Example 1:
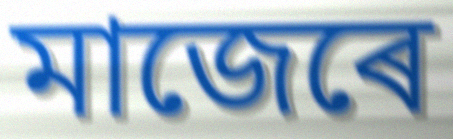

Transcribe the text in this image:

মাজেৰে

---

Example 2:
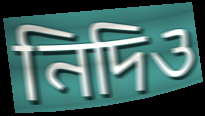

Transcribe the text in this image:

নিদিও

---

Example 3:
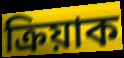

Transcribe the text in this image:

ক্ৰিয়াক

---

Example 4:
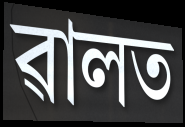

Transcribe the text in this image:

ৱালত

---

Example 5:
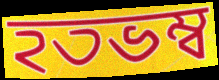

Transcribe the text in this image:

হতভম্ব